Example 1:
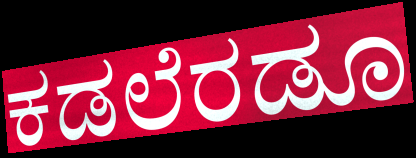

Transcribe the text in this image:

ಕಡಲೆರಡೂ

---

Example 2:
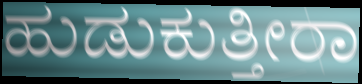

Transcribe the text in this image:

ಹುಡುಕುತ್ತೀರಾ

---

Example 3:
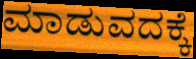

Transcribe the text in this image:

ಮಾಡುವದಕ್ಕೆ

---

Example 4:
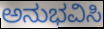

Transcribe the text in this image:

ಅನುಭವಿಸಿ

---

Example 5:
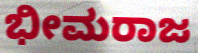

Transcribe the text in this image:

ಭೀಮರಾಜ